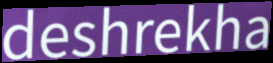
deshrekha